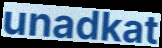
unadkat